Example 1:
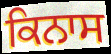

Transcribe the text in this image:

ਕਿਨਾਸ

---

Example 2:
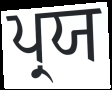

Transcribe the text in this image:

ਪ੍ਰਯ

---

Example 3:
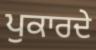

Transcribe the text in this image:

ਪੁਕਾਰਦੇ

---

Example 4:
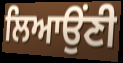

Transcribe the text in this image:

ਲਿਆਉਂਣੀ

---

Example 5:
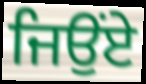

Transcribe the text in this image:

ਜਿਉਂਏ